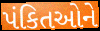
પંકિતઓને